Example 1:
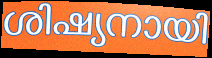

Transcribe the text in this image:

ശിഷ്യനായി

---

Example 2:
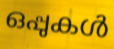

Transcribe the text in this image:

ഒപ്പുകൾ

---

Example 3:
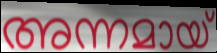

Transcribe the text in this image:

അന്നമായ്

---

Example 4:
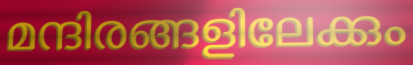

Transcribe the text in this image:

മന്ദിരങ്ങളിലേക്കും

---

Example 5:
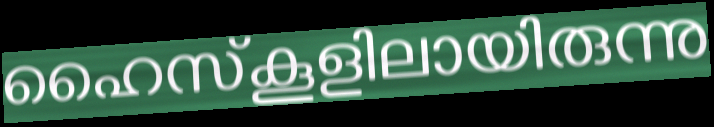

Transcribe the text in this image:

ഹൈസ്‌കൂളിലായിരുന്നു